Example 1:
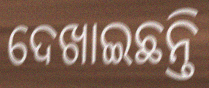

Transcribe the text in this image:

ଦେଖାଇଛନ୍ତି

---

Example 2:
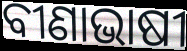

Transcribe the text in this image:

ବୀଣାଭାଷୀ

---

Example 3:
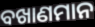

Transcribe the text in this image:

ବଖାଣମାନ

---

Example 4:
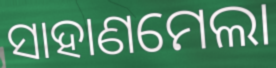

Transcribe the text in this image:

ସାହାଣମେଲା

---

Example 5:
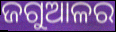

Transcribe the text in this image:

ଜଗୁଆଳର